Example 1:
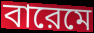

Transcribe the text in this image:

বারেমে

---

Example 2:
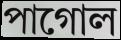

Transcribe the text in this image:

পাগোল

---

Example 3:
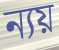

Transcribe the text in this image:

ন্যয়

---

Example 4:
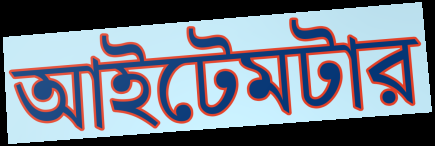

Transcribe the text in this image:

আইটেমটার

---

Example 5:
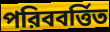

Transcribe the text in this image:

পরিববর্ত্তিত